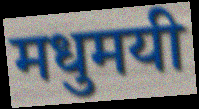
मधुमयी